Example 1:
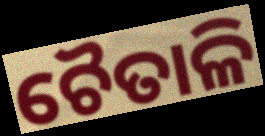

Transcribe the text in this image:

ଚୈତାଳି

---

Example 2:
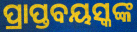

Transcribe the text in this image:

ପ୍ରାପ୍ତବୟସ୍କଙ୍କ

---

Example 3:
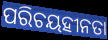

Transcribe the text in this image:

ପରିଚୟହୀନତା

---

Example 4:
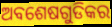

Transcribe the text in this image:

ଅବଶେଷଗୁଡିକର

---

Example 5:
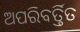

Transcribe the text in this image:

ଅପରିବର୍ତ୍ତିତ